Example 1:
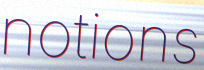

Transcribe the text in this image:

notions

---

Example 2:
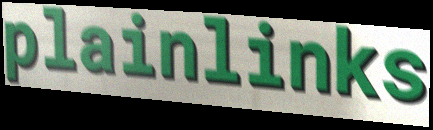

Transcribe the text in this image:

plainlinks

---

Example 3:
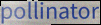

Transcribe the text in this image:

pollinator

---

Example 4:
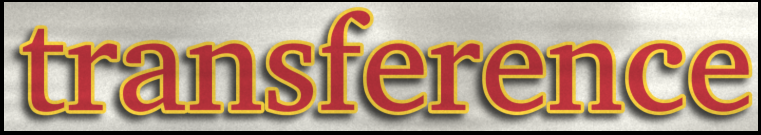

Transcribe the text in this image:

transference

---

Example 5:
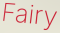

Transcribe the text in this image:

Fairy